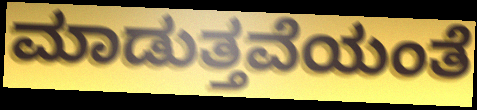
ಮಾಡುತ್ತವೆಯಂತೆ